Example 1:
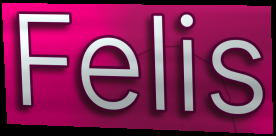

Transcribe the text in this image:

Felis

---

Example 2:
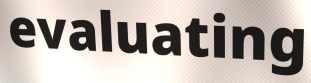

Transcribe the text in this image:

evaluating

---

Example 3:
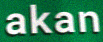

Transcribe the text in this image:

akan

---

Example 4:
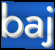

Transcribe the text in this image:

baj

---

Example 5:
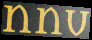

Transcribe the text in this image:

nnu